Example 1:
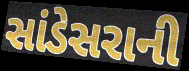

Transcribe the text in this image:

સાંડેસરાની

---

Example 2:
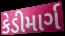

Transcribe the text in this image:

કેડીમાર્ગ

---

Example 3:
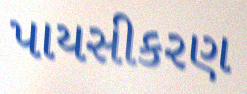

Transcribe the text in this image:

પાયસીકરણ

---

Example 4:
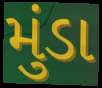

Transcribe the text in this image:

મુંડા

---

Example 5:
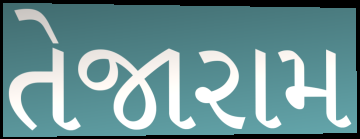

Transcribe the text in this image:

તેજારામ